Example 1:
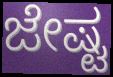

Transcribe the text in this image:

ಜೇಷ್ಟ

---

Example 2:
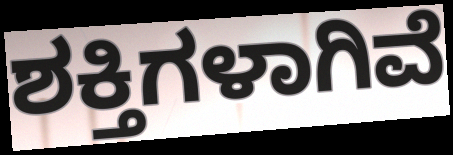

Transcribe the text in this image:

ಶಕ್ತಿಗಳಾಗಿವೆ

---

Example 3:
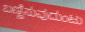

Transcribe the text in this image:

ಬಣ್ಣಿಸುವುದುಂಟು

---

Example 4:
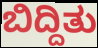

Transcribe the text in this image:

ಬಿದ್ದಿತು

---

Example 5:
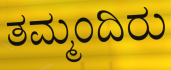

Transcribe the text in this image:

ತಮ್ಮಂದಿರು